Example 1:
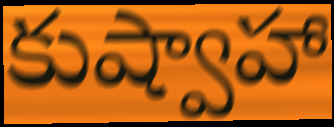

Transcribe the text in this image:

కుష్వాహా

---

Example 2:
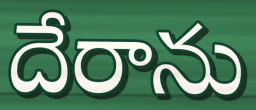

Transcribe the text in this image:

దేరాను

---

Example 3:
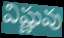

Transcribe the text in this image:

విష్ణువు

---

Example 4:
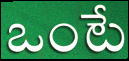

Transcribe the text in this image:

ఒంటే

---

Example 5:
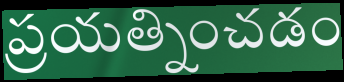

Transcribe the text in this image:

ప్రయత్నించడం